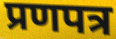
प्रणपत्र